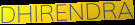
DHIRENDRA